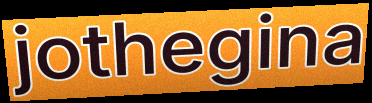
jothegina